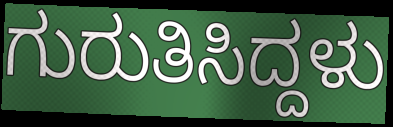
ಗುರುತಿಸಿದ್ದಳು